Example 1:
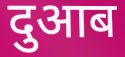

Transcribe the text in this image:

दुआब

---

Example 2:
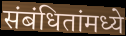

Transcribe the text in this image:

संबंधितांमध्ये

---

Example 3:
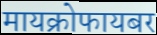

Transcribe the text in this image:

मायक्रोफायबर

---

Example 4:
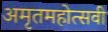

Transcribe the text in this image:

अमृतमहोत्सवी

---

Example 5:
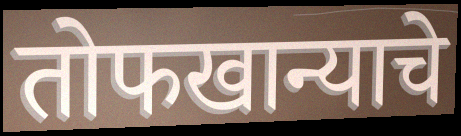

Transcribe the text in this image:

तोफखान्याचे